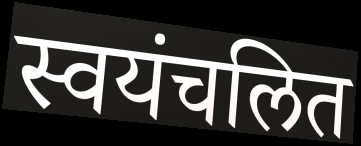
स्वयंचलित